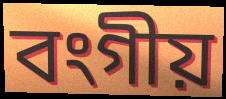
বংগীয়